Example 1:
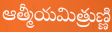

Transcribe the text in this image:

ఆత్మీయమిత్రుణ్ణి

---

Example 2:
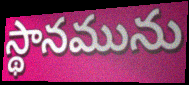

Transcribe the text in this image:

స్థానమును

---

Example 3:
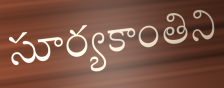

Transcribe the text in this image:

సూర్యకాంతిని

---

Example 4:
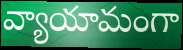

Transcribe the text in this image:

వ్యాయామంగా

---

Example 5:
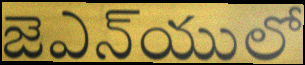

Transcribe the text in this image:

జెఎన్‌యులో